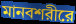
মানবশরীরে